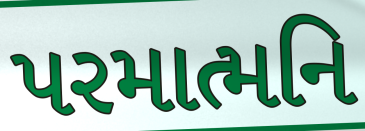
પરમાત્મનિ